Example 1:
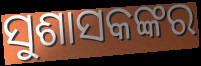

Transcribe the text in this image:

ସୁଶାସକଙ୍କର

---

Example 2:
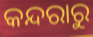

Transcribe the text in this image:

କନ୍ଦରାରୁ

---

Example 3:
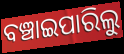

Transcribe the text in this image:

ବଞ୍ଚାଇପାରିଲୁ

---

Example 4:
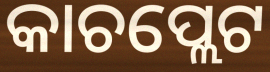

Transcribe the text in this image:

କାଚପ୍ଲେଟ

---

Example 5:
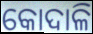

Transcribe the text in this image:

କୋଦାଳି